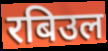
रबिउल